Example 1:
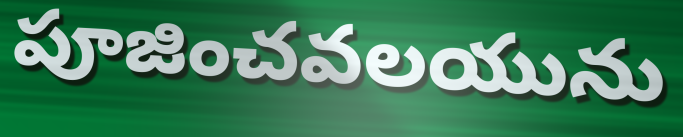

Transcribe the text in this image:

పూజించవలయును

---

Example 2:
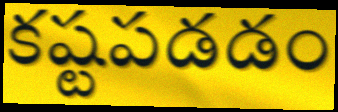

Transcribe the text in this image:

కష్టపడడం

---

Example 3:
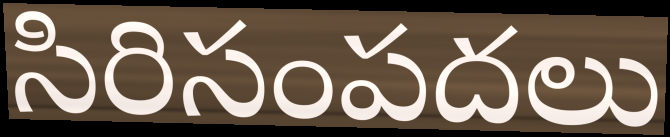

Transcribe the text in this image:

సిరిసంపదలు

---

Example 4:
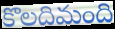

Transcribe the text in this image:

కొలదిమంది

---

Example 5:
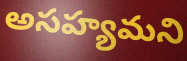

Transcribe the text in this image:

అసహ్యమని